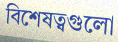
বিশেষত্বগুলো